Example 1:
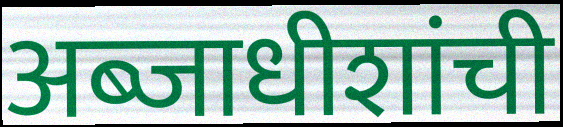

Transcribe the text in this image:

अब्जाधीशांची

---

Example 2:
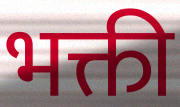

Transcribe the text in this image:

भक्ती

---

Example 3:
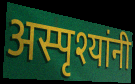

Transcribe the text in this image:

अस्पृश्यांनी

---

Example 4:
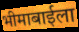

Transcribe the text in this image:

भीमाबाईला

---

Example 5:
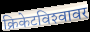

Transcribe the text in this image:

क्रिकेटविश्वावर